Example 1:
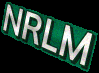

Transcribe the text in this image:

NRLM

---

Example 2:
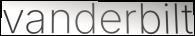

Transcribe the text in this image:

vanderbilt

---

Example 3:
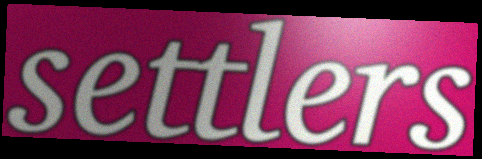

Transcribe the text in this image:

settlers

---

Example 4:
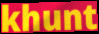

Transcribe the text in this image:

khunt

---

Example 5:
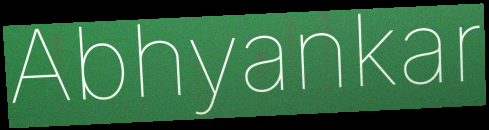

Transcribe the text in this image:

Abhyankar